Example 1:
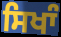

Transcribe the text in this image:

ਸਿਖਾੰ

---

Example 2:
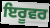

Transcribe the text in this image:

ਇਰੂਵਰ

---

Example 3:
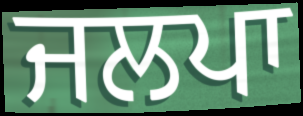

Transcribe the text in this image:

ਜਲਪਾ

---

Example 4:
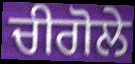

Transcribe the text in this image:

ਚੀਗੋਲੇ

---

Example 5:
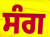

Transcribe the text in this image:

ਸੰਗ